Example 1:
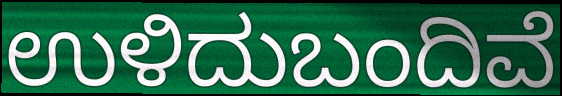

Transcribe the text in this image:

ಉಳಿದುಬಂದಿವೆ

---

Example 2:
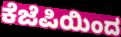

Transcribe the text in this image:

ಕೆಜೆಪಿಯಿಂದ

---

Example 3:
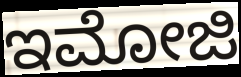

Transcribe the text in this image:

ಇಮೋಜಿ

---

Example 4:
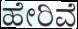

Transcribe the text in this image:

ಹೇರಿವೆ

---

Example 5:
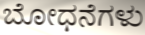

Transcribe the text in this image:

ಬೋಧನೆಗಳು